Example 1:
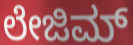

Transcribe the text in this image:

ಲೇಜಿಮ್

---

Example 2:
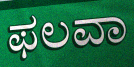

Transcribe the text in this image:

ಫಲವಾ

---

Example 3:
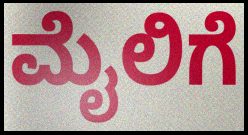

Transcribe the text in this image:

ಮೈಲಿಗೆ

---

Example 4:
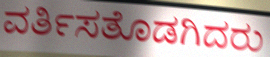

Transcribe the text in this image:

ವರ್ತಿಸತೊಡಗಿದರು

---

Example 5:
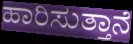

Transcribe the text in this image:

ಹಾರಿಸುತ್ತಾನೆ